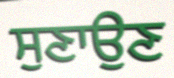
ਸੁਣਾਉਣ